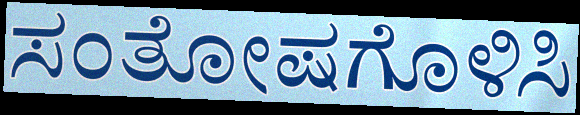
ಸಂತೋಷಗೊಳಿಸಿ